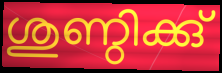
ശുണ്ഠിക്കു്